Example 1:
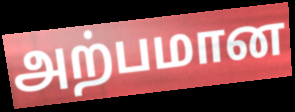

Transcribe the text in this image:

அற்பமான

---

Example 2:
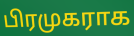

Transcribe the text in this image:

பிரமுகராக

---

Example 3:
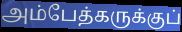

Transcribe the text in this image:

அம்பேத்கருக்குப்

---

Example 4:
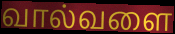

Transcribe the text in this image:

வால்வளை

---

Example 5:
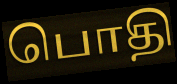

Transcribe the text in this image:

பொதி